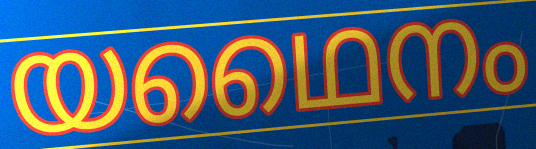
യഥൈനം